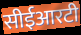
सीईआरटी